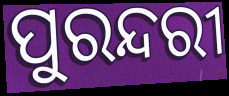
ପୁରନ୍ଦରୀ